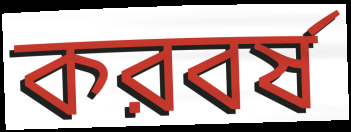
করবর্ষ